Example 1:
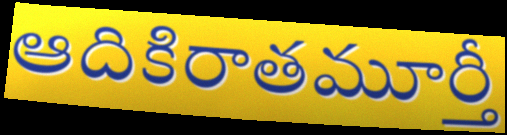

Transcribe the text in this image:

ఆదికిరాతమూర్తీ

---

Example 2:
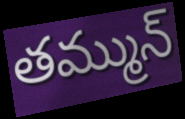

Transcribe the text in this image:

తమ్మున్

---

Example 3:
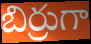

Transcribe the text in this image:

బిర్రుగా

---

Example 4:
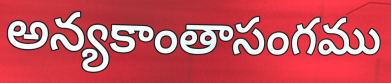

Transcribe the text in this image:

అన్యకాంతాసంగము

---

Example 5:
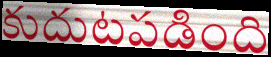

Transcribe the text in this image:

కుదుటపడింది